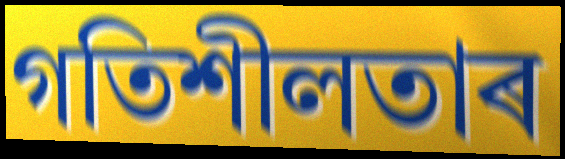
গতিশীলতাৰ